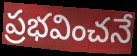
ప్రభవించనే